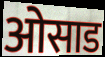
ओसाड